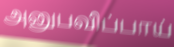
அனுபவிப்பாய்